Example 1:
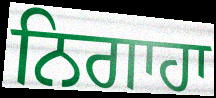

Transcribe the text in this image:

ਨਿਗਾਹਾ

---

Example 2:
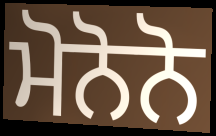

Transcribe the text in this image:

ਮੋਨੋਨੋ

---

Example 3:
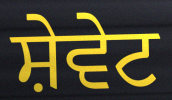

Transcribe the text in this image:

ਸ਼ੇਵੇਟ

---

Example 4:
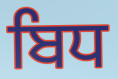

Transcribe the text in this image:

ਬਿਧ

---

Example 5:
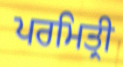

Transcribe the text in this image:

ਪਰਮਿਤ੍ਰੀ